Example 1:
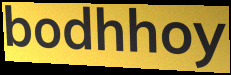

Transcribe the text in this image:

bodhhoy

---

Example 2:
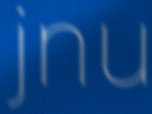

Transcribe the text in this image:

jnu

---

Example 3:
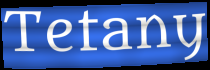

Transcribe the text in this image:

Tetany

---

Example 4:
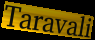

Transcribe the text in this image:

Taravali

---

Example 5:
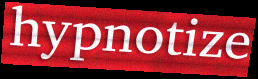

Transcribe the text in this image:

hypnotize